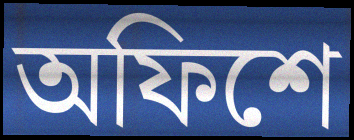
অফিশে